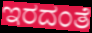
ಇರದಂತೆ